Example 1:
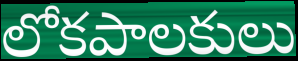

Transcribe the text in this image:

లోకపాలకులు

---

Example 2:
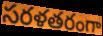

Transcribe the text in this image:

సరళతరంగా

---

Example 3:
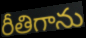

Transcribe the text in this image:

రీతిగాను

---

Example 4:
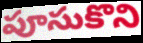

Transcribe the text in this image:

పూసుకొని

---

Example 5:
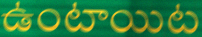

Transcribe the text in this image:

ఉంటాయిట